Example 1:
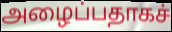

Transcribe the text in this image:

அழைப்பதாகச்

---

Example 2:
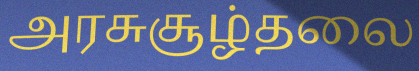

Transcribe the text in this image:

அரசுசூழ்தலை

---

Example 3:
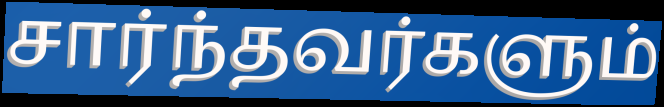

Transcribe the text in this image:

சார்ந்தவர்களும்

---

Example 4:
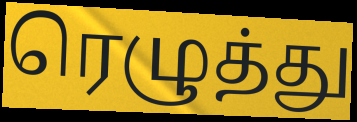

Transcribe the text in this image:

ரெழுத்து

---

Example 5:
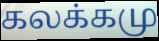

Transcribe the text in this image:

கலக்கமு